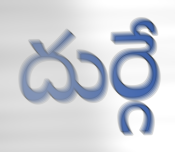
దుర్గే